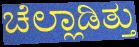
ಚೆಲ್ಲಾಡಿತ್ತು